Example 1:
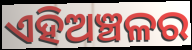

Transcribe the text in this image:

ଏହିଅଞ୍ଚଳର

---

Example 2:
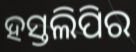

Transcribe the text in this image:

ହସ୍ତଲିପିର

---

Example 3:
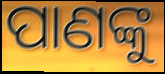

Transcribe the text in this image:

ପାଣଙ୍କୁ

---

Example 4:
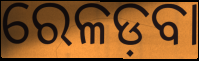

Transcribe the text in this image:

ରେଳଡ଼ବା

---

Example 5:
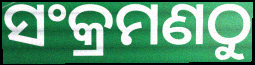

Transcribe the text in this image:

ସଂକ୍ରମଣଠୁ